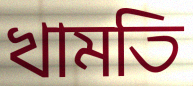
খামতি